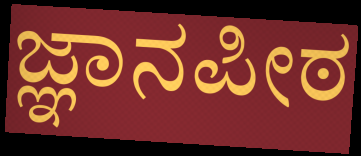
ಜ್ಞಾನಪೀಠ